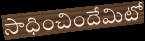
సాధించిందేమిటో